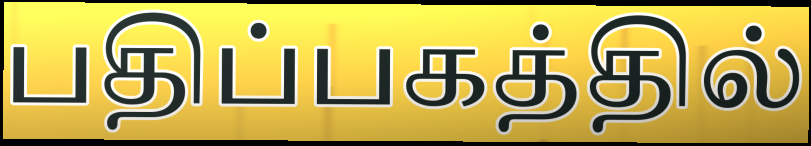
பதிப்பகத்தில்